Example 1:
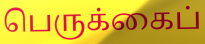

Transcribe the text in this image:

பெருக்கைப்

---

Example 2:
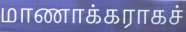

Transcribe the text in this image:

மாணாக்கராகச்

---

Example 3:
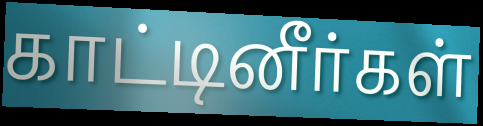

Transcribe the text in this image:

காட்டினீர்கள்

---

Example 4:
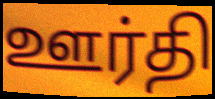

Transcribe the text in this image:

ஊர்தி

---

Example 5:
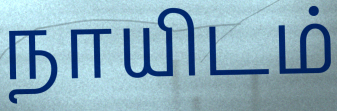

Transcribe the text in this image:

நாயிடம்